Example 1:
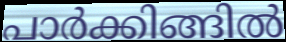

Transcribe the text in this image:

പാർക്കിങ്ങിൽ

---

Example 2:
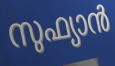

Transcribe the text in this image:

സുഫ്യാൻ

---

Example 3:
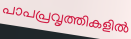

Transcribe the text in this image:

പാപപ്രവൃത്തികളിൽ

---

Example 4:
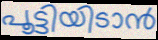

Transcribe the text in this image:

പൂട്ടിയിടാൻ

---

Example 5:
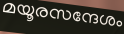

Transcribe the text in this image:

മയൂരസന്ദേശം